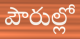
పౌరుల్లో